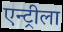
एन्ट्रीला